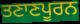
ਤਣਾਣਪੂਰਨ